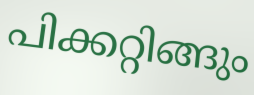
പിക്കറ്റിങ്ങും